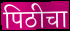
पिठीचा